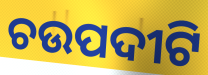
ଚଉପଦୀଟି